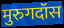
मुरुगदॉस